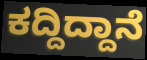
ಕದ್ದಿದ್ದಾನೆ